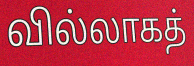
வில்லாகத்